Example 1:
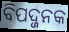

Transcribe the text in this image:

ବିପଦ୍ଜନକ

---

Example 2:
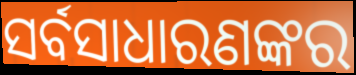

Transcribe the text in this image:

ସର୍ବସାଧାରଣଙ୍କର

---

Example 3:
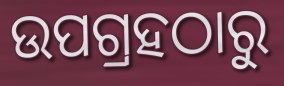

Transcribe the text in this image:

ଉପଗ୍ରହଠାରୁ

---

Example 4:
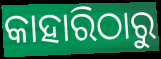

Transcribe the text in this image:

କାହାରିଠାରୁ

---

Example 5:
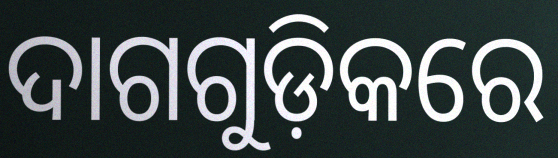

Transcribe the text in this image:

ଦାଗଗୁଡ଼ିକରେ